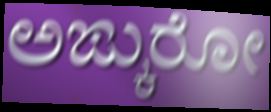
ಅಙ್ಕುರೋ